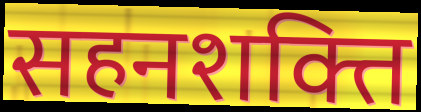
सहनशक्ति